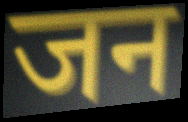
जन